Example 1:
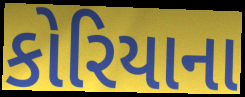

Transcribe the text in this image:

કોરિયાના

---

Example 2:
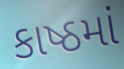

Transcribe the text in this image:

કાષ્ઠમાં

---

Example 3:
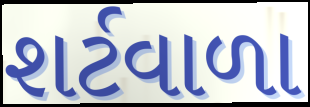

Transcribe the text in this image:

શર્ટવાળા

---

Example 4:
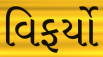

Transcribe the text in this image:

વિફર્યો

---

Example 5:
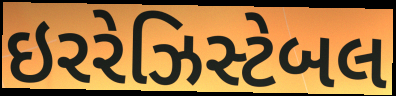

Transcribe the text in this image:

ઇરરેઝિસ્ટેબલ